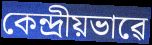
কেন্দ্ৰীয়ভাৱে